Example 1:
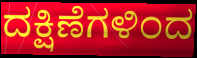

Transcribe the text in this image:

ದಕ್ಷಿಣೆಗಳಿಂದ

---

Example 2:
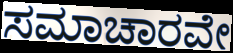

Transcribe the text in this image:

ಸಮಾಚಾರವೇ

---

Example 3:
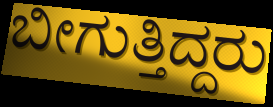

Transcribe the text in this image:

ಬೀಗುತ್ತಿದ್ದರು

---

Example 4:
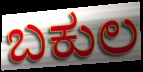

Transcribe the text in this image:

ಬಕುಲ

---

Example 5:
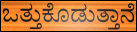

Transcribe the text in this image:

ಒತ್ತುಕೊಡುತ್ತಾನೆ